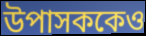
উপাসককেও